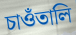
চাওঁতালি